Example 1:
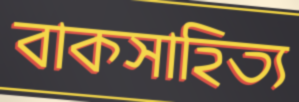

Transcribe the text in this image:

বাকসাহিত্য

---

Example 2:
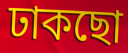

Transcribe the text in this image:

ঢাকছো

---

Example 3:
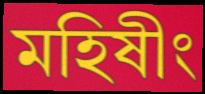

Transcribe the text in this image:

মহিষীং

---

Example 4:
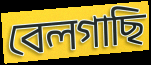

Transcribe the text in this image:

বেলগাছি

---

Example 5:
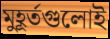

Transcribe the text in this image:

মুহূর্তগুলোই